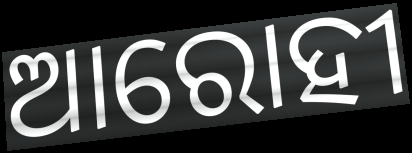
ଆରୋହୀ